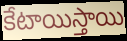
కేటాయిస్తాయి